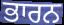
ਭਾਰਨ